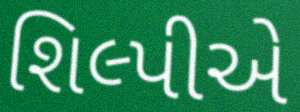
શિલ્પીએ